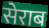
सेराब